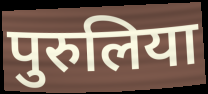
पुरुलिया